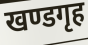
खण्डगृह